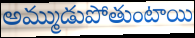
అమ్ముడుపోతుంటాయి